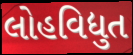
લોહવિદ્યુત